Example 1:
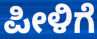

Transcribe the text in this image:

ಪೀಳಿಗೆ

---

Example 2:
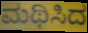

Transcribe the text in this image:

ಮಥಿಸಿದ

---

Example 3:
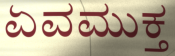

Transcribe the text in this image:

ಏವಮುಕ್ತ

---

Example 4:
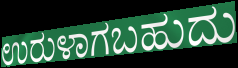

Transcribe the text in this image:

ಉರುಳಾಗಬಹುದು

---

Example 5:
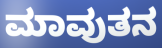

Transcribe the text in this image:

ಮಾವುತನ